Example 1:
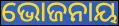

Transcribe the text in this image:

ଭୋଜନାୟ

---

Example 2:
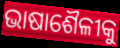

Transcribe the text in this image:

ଭାଷାଶୈଳୀକୁ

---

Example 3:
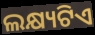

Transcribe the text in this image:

ଲକ୍ଷ୍ୟଟିଏ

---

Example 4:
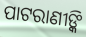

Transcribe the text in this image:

ପାଟରାଣୀଙ୍କି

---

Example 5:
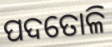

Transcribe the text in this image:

ପଦତୋଳି